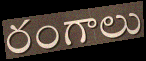
రంగాలు